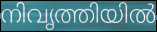
നിവൃത്തിയിൽ